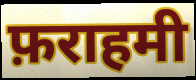
फ़राहमी